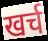
खर्च